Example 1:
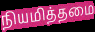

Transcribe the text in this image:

நியமித்தமை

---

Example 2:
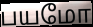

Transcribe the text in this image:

பயமோ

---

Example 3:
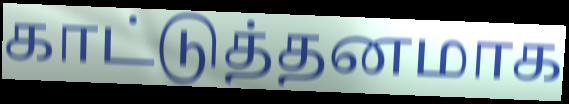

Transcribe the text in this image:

காட்டுத்தனமாக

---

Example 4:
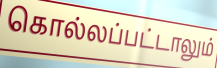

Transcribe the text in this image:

கொல்லப்பட்டாலும்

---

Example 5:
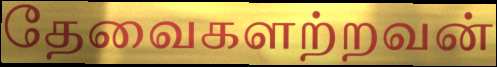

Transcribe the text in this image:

தேவைகளற்றவன்